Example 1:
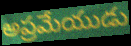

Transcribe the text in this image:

అప్రమేయుడు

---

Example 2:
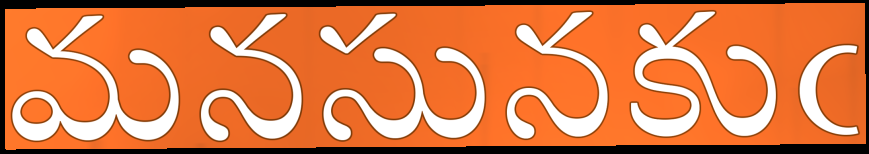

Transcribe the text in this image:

మనసునకుఁ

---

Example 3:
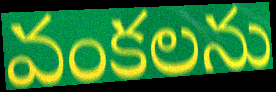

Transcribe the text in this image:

వంకలను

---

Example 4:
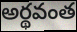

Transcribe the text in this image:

అర్థవంత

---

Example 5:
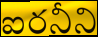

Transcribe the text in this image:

ఐరనీని